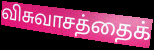
விசுவாசத்தைக்